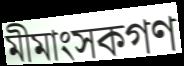
মীমাংসকগণ